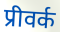
प्रीवर्क